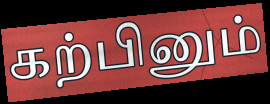
கற்பினும்